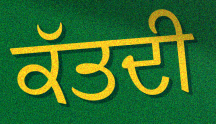
ਕੱਤਦੀ